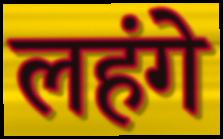
लहंगे